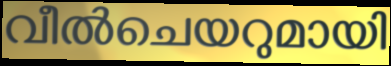
വീൽചെയറുമായി